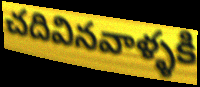
చదివినవాళ్ళకి